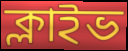
ক্লাইভ